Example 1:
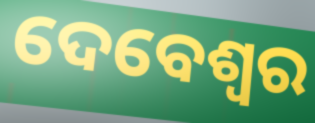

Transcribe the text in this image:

ଦେବେଶ୍ୱର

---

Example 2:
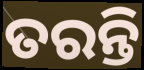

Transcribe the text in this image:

ତରନ୍ତି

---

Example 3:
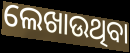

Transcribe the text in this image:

ଲେଖାଉଥିବା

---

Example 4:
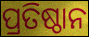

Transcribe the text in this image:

ପ୍ରତିଷ୍ଠାନ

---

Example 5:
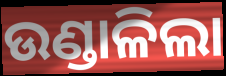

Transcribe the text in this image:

ଉଣ୍ଡାଳିଲା